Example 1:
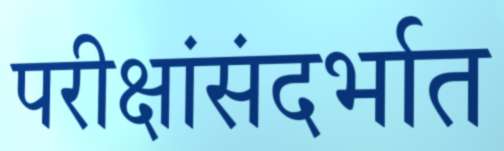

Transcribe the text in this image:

परीक्षांसंदर्भात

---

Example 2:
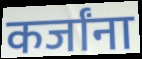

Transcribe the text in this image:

कर्जांना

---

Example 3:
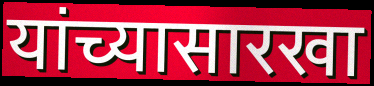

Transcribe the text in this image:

यांच्यासारखा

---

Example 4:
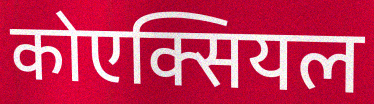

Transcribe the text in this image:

कोएक्सियल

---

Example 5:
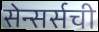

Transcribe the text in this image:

सेन्सर्सची